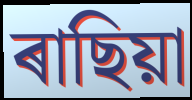
ৰাছিয়া